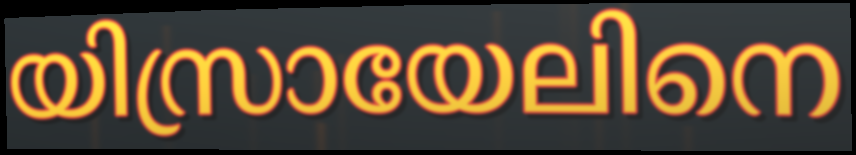
യിസ്രായേലിനെ